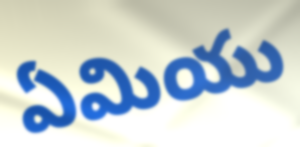
ఏమియు